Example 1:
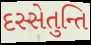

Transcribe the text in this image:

દસ્સેતુન્તિ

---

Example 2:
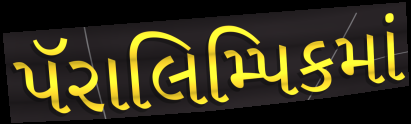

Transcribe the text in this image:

પૅરાલિમ્પિકમાં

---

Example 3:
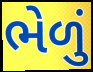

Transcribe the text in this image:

ભેળું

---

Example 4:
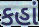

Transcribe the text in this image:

કહાં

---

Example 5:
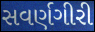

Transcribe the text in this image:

સવર્ણગીરી